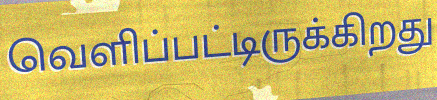
வெளிப்பட்டிருக்கிறது